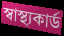
স্বাস্থ্যকার্ড